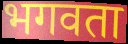
भगवता